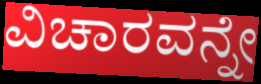
ವಿಚಾರವನ್ನೇ